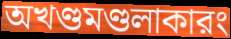
অখণ্ডমণ্ডলাকারং